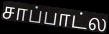
சாப்பாட்ல